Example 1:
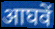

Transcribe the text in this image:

आघवें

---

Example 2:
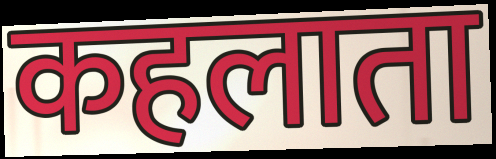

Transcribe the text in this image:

कहलाता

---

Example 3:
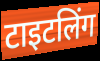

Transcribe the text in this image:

टाइटलिंग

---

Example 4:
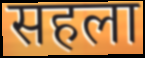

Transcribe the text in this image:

सहला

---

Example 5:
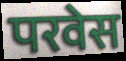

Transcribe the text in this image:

परवेस